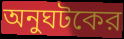
অনুঘটকের